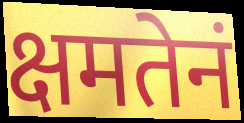
क्षमतेनं